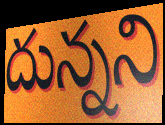
దున్నని